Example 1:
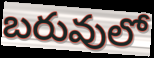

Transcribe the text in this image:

బరువులో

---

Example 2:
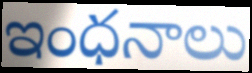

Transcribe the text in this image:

ఇంధనాలు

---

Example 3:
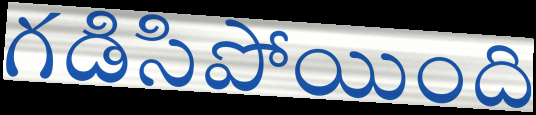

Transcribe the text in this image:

గడిసిపోయింది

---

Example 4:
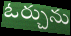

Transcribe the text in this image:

ఓర్చును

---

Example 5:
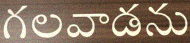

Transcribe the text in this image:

గలవాడను